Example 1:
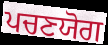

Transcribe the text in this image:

ਪਚਣਯੋਗ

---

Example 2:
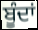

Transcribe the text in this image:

ਬੂੰਦਾਂ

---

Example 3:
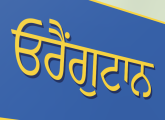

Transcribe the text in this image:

ਓਰੈਂਗੁਟਾਨ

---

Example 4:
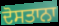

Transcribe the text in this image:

ਦੋਸਤਾਨਾ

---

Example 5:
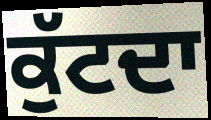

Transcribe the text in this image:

ਕੁੱਟਦਾ